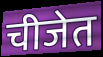
चीजेत